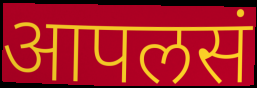
आपलसं